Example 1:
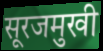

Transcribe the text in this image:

सूरजमुखी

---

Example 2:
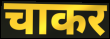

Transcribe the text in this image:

चाकर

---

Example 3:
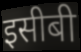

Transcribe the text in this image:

इसीबी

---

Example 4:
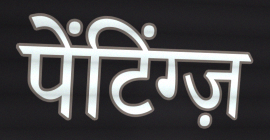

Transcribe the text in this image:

पेंटिंग्ज़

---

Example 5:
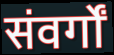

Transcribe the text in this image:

संवर्गों